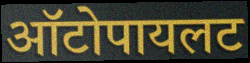
ऑटोपायलट